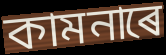
কামনাৰে